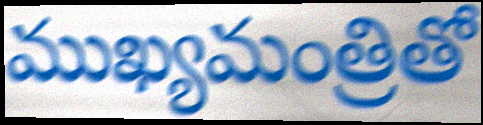
ముఖ్యమంత్రితో